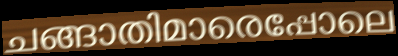
ചങ്ങാതിമാരെപ്പോലെ